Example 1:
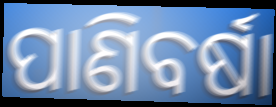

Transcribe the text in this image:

ପାଣିବର୍ଷା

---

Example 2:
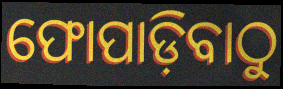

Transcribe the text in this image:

ଫୋପାଡ଼ିବାଠୁ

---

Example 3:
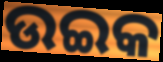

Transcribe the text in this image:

ଉଇକ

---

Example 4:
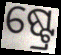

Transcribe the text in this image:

ଷ୍ଟ୍ରେ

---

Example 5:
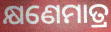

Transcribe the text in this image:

କ୍ଷଣେମାତ୍ର